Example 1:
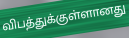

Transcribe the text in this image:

விபத்துக்குள்ளானது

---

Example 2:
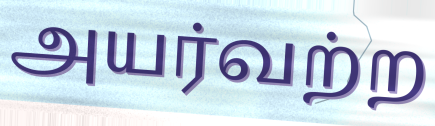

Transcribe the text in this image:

அயர்வற்ற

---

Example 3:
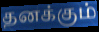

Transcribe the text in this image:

தனக்கும்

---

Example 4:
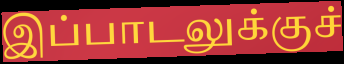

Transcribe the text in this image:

இப்பாடலுக்குச்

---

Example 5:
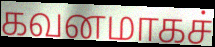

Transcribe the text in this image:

கவனமாகச்